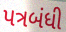
પત્રબંધી